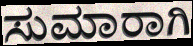
ಸುಮಾರಾಗಿ